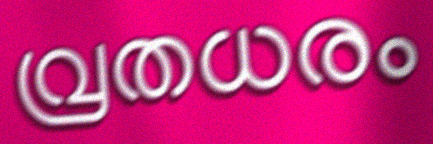
വ്രതധരം